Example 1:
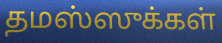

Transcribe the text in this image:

தமஸ்ஸுக்கள்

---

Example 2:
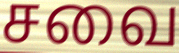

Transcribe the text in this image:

சவை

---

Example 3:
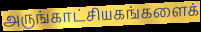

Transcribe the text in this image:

அருங்காட்சியகங்களைக்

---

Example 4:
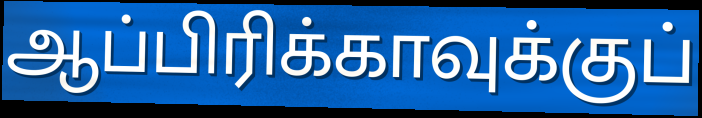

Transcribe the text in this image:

ஆப்பிரிக்காவுக்குப்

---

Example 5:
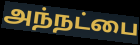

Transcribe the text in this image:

அந்நட்பை